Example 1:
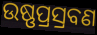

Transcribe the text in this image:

ଉଷ୍ଣପ୍ରସ୍ରବଣ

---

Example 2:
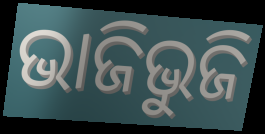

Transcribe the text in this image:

ଭାଜିଭୁଜି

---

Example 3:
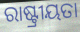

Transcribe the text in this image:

ରାଷ୍ଟ୍ରୀୟତା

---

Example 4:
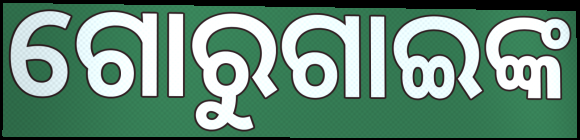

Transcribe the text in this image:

ଗୋରୁଗାଇଙ୍କ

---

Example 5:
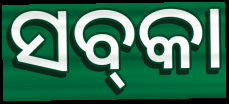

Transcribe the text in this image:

ସବ୍‌କା